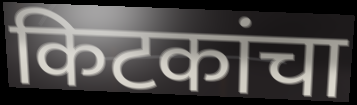
किटकांचा